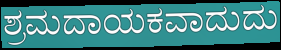
ಶ್ರಮದಾಯಕವಾದುದು